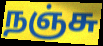
நஞ்சு